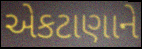
એકટાણાને